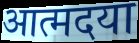
आत्मदया